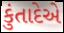
કુંતાદેએ